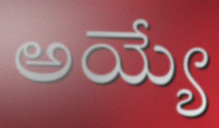
అయ్యే